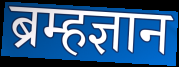
ब्रम्हज्ञान